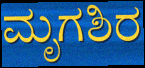
ಮೃಗಶಿರ